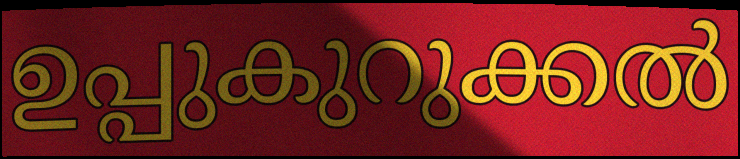
ഉപ്പുകുറുക്കൽ